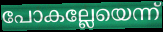
പോകല്ലേയെന്ന്